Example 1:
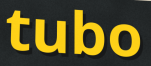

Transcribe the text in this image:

tubo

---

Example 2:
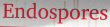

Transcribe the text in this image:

Endospores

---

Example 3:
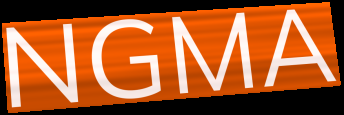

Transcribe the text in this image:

NGMA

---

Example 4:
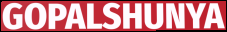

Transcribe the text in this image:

GOPALSHUNYA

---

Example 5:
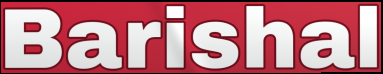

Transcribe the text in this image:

Barishal